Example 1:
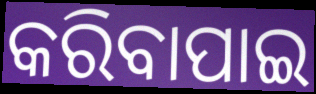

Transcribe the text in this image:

କରିବାପାଇ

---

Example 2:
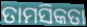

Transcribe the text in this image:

ତାମସିକତା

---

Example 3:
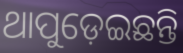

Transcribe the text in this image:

ଥାପୁଡ଼େଇଛନ୍ତି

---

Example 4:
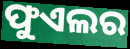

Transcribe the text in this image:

ଫୁଏଲର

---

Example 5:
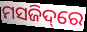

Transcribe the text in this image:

ମସଜିଦ୍‌ରେ